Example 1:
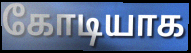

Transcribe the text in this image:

கோடியாக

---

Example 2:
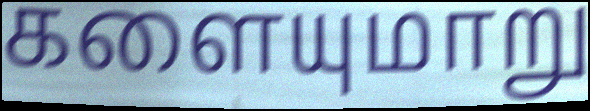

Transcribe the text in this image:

களையுமாறு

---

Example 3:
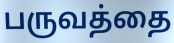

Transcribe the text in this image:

பருவத்தை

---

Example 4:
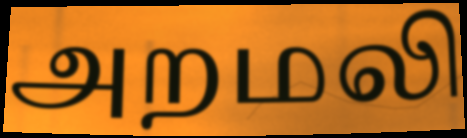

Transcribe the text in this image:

அறமலி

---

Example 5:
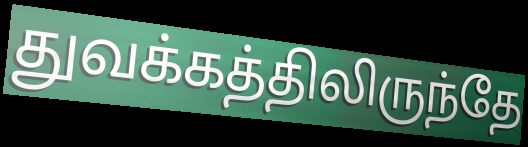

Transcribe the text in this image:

துவக்கத்திலிருந்தே